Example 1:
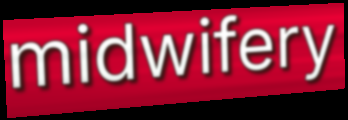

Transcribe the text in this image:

midwifery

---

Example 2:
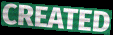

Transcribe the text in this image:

CREATED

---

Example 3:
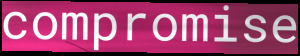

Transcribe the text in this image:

compromise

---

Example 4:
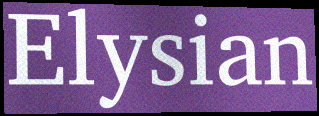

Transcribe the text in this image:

Elysian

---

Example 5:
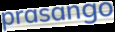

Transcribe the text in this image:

prasango